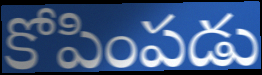
కోపింపడు